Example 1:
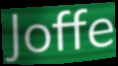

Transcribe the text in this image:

Joffe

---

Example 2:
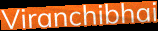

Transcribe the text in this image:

Viranchibhai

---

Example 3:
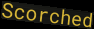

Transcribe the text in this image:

Scorched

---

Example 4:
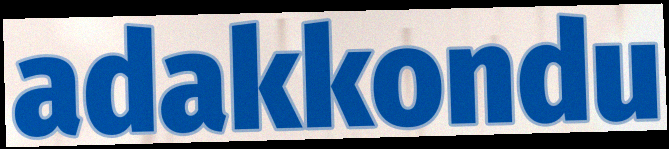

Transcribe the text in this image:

adakkondu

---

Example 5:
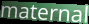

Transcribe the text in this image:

maternal